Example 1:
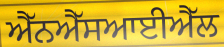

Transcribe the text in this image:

ਐੱਨਐੱਸਆਈਐੱਲ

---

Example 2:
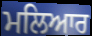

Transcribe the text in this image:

ਮਲਿਆਰ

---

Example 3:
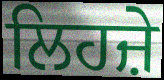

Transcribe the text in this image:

ਲਿਹਜ਼ੇ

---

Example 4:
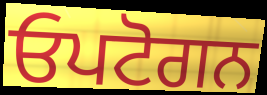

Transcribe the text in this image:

ਓਪਟੋਗਨ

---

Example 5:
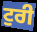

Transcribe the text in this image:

ਟੁਰੀ